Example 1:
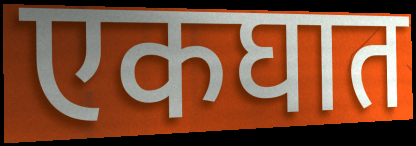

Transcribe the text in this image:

एकघात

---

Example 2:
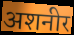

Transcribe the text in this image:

अशनीर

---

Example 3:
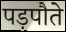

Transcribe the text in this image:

पड़पौते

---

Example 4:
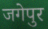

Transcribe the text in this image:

जगेपुर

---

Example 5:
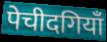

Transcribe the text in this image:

पेचीदगियाँ